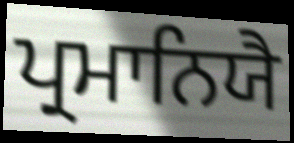
ਪ੍ਰਮਾਨਿਯੈ